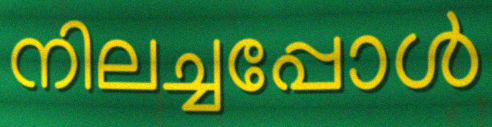
നിലച്ചപ്പോൾ